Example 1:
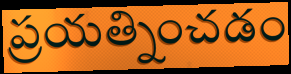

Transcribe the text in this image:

ప్రయత్నించడం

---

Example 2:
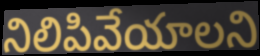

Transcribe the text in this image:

నిలిపివేయాలని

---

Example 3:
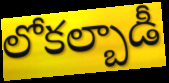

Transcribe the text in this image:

లోకల్బాడీ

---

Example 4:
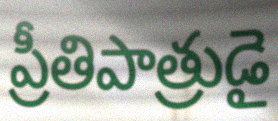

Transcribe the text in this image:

ప్రీతిపాత్రుడై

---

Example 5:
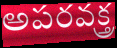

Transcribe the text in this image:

అపరవక్త్ర